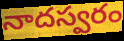
నాదస్వరం